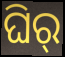
ଘିର୍